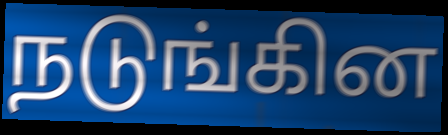
நடுங்கின